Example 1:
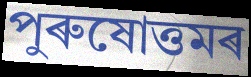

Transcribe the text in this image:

পুৰুষোত্তমৰ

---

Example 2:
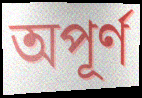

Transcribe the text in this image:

অপূৰ্ণ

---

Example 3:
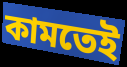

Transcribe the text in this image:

কামতেই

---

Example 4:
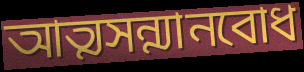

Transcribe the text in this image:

আত্মসন্মানবোধ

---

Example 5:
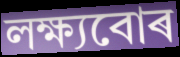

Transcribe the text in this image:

লক্ষ্যবোৰ